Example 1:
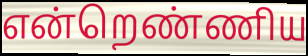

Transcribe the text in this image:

என்றெண்ணிய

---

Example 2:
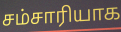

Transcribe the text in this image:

சம்சாரியாக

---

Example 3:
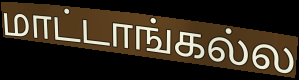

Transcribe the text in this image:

மாட்டாங்கல்ல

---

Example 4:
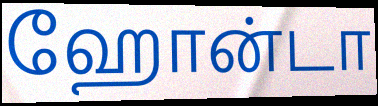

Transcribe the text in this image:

ஹோன்டா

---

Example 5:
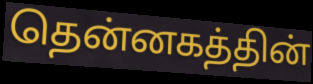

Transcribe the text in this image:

தென்னகத்தின்